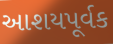
આશયપૂર્વક